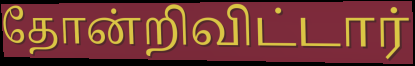
தோன்றிவிட்டார்